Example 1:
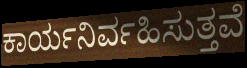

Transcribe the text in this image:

ಕಾರ್ಯನಿರ್ವಹಿಸುತ್ತವೆ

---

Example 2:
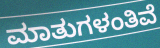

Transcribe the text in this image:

ಮಾತುಗಳಂತಿವೆ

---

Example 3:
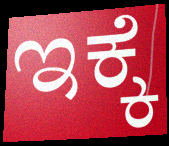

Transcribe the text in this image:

ಇಕ್ಕೆ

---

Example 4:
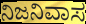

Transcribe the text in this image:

ನಿಜನಿವಾಸ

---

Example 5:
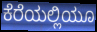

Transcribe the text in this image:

ಕೆರೆಯಲ್ಲಿಯೂ